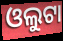
ଓଲୁଟା